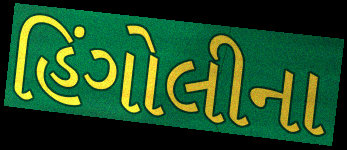
હિંગોલીના